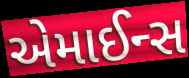
એમાઈન્સ